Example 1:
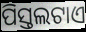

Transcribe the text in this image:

ପିସ୍ତଲଟାଏ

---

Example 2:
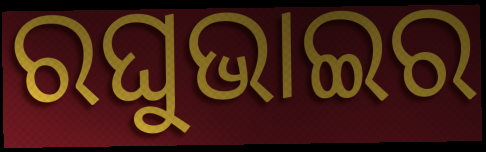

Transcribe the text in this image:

ରଘୁଭାଇର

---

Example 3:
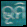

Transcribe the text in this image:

ଭୂମି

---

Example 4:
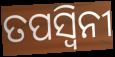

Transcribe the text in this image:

ତପସ୍ଵିନୀ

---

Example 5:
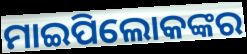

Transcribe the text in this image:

ମାଇପିଲୋକଙ୍କର